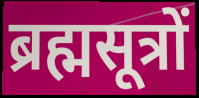
ब्रह्मसूत्रों